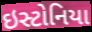
ઇસ્ટોનિયા